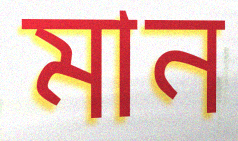
মান